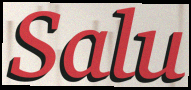
Salu